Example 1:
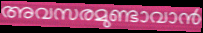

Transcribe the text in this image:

അവസരമുണ്ടാവാൻ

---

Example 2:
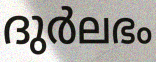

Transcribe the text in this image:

ദുർലഭം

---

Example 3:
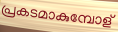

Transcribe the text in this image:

പ്രകടമാകുമ്പോള്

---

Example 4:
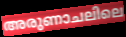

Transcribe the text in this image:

അരുണാചലിലെ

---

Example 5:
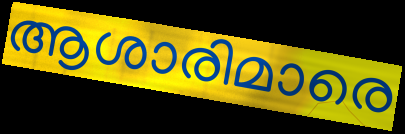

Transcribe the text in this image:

ആശാരിമാരെ